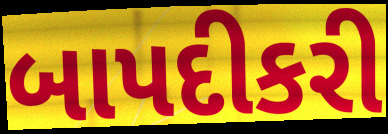
બાપદીકરી